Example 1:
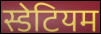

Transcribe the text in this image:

स्डेटियम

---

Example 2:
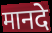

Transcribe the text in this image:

मानदे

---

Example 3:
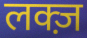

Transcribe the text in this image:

लक्ज़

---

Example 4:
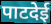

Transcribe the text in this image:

पाटदेई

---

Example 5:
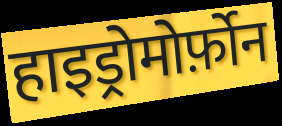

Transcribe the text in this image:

हाइड्रोमोर्फ़ोन